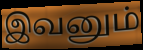
இவனும்